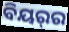
ବିୟର୍‌ର